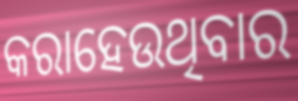
କରାହେଉଥିବାର